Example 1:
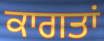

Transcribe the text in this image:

ਕਾਗਤਾਂ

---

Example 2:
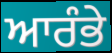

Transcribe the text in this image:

ਆਰੰਭੇ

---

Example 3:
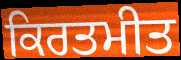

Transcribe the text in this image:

ਕਿਰਤਮੀਤ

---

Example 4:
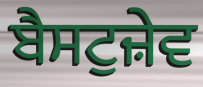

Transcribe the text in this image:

ਬੈਸਟੁਜ਼ੇਵ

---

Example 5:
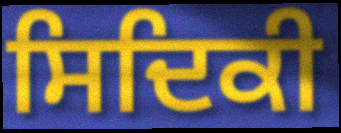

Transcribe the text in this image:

ਸਿਦਿਕੀ